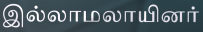
இல்லாமலாயினர்